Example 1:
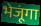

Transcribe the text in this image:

भेजूंगा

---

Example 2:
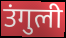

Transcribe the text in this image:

उंगुली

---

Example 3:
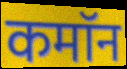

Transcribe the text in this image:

कमॉन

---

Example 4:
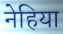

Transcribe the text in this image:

नेहिया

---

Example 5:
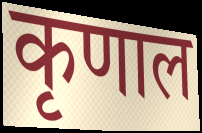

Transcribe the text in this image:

कृणाल